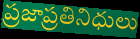
ప్రజాప్రతినిధులు